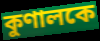
কুণালকে